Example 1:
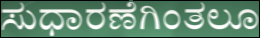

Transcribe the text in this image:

ಸುಧಾರಣೆಗಿಂತಲೂ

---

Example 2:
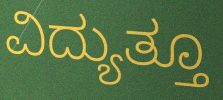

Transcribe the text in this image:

ವಿದ್ಯುತ್ತೂ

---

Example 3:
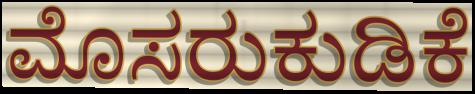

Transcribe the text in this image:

ಮೊಸರುಕುಡಿಕೆ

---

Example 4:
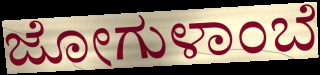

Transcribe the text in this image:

ಜೋಗುಳಾಂಬೆ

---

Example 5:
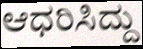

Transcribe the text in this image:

ಆಧರಿಸಿದ್ದು